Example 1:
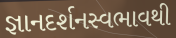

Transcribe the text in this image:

જ્ઞાનદર્શનસ્વભાવથી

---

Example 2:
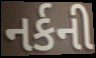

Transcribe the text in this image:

નર્કની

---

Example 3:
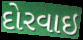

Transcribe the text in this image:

દોરવાઇ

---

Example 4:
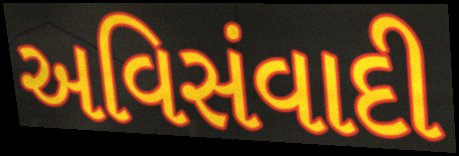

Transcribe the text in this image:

અવિસંવાદી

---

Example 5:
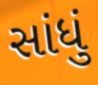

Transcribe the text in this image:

સાંધું